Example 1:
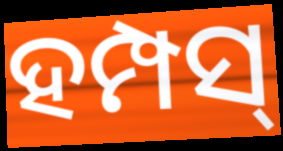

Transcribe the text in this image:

ହମ୍ପସ୍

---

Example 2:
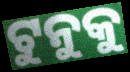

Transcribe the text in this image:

ଟୁନୁକୁ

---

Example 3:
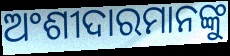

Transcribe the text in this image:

ଅଂଶୀଦାରମାନଙ୍କୁ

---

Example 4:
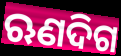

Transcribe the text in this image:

ଋଣଦିଗ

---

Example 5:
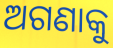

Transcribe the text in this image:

ଅଗଣାକୁ